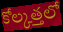
కోల్కత్తలో